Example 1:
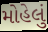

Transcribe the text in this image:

મોહેલું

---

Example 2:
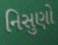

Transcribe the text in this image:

નિસુણો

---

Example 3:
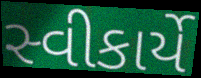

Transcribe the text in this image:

સ્વીકાર્યે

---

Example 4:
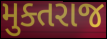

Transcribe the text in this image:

મુક્તરાજ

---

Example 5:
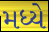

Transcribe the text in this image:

મધ્યે